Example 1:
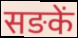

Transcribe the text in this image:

सङकें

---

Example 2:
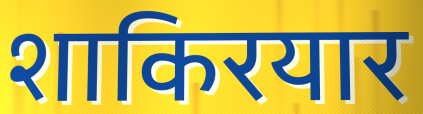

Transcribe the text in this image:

शाकिरयार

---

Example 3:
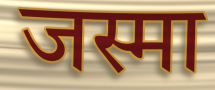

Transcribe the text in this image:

जस्मा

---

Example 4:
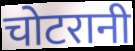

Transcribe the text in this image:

चोटरानी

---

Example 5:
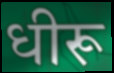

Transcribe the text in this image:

धीरू